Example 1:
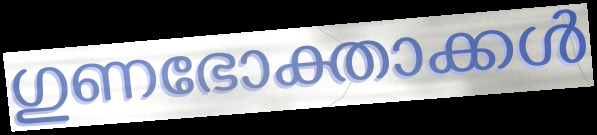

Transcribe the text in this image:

ഗുണഭോക്താക്കൾ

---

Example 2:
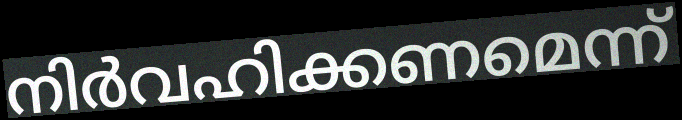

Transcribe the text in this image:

നിർവഹിക്കണമെന്ന്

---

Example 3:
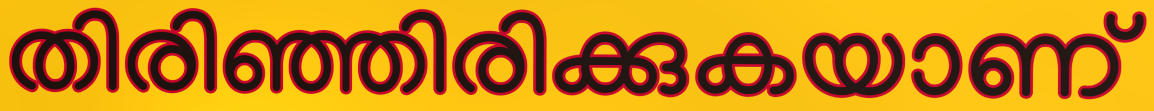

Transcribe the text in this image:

തിരിഞ്ഞിരിക്കുകയാണ്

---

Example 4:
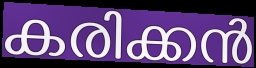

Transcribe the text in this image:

കരിക്കൻ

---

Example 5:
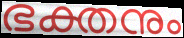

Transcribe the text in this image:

ഭക്തനും